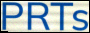
PRTs